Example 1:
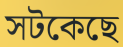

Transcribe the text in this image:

সটকেছে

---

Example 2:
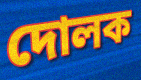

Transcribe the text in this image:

দোলক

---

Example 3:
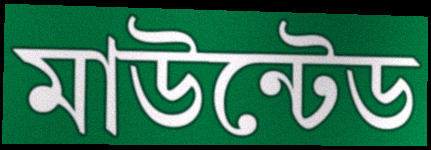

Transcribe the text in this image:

মাউন্টেড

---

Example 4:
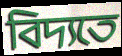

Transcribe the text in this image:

বিদ্যতে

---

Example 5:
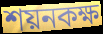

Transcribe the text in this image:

শয়নকক্ষ